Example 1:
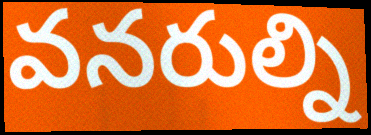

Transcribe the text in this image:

వనరుల్ని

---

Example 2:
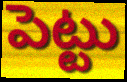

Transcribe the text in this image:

పెట్టు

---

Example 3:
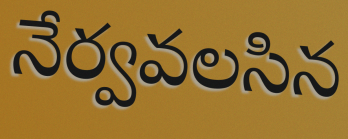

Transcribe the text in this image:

నేర్వవలసిన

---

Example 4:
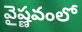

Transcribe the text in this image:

వైష్ణవంలో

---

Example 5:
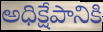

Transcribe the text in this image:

అధిక్షేపానికి